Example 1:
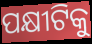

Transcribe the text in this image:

ପକ୍ଷୀଟିକୁ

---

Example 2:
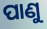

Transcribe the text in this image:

ପାଣୁ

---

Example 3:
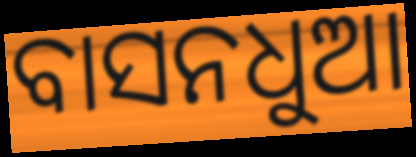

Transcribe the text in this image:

ବାସନଧୁଆ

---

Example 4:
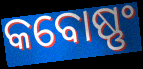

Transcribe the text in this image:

କବୋଷ୍ଣଂ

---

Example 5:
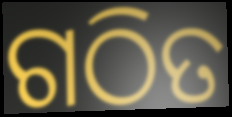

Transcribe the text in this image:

ଗଠିତ